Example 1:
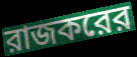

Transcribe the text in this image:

রাজকরের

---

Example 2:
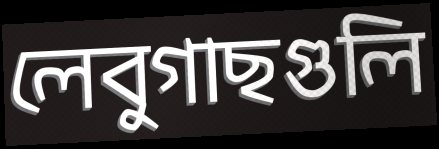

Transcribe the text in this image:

লেবুগাছগুলি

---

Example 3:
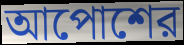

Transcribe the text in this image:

আপোশের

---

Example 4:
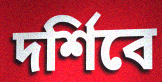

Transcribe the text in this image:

দর্শিবে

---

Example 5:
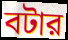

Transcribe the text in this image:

বটার